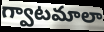
గ్వాటమాలా